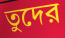
তুদের